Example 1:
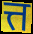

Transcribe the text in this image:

त्त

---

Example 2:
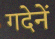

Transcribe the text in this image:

गदेनें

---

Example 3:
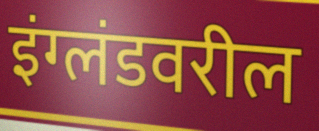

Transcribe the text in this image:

इंग्लंडवरील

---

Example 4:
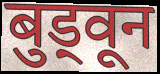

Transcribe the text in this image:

बुड्वून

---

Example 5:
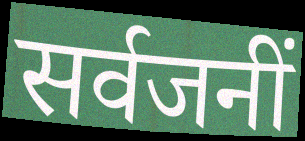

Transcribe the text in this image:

सर्वजनीं